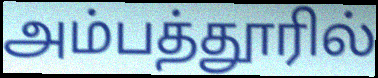
அம்பத்தூரில்